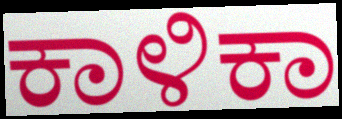
ಕಾಳಿಕಾ